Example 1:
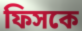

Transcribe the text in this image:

ফিসকে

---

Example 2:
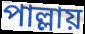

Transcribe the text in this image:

পাল্লায়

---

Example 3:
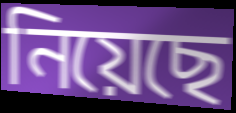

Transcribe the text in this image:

নিয়েছে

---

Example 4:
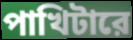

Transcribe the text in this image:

পাখিটারে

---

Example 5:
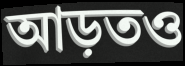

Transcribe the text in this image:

আড়তও